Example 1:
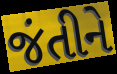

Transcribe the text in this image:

જંતીને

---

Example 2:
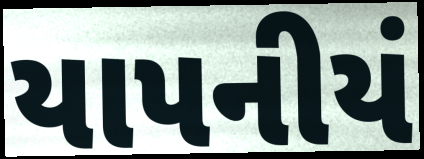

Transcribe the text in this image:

યાપનીયં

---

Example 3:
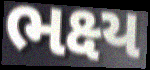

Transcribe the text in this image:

ભક્ષ્ય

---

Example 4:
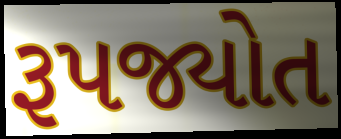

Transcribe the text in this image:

રૂપજ્યોત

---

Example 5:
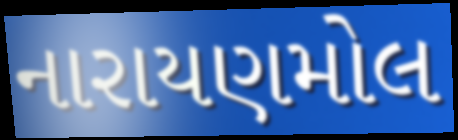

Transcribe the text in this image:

નારાયણમોલ